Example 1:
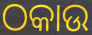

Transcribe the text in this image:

ଠକାଉ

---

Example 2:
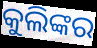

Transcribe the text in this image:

କୁଲିଙ୍କର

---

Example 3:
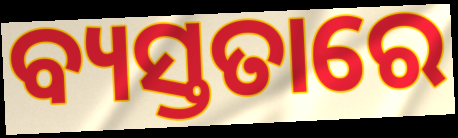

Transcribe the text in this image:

ବ୍ୟସ୍ତତାରେ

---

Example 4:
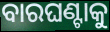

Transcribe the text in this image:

ବାରଘଣ୍ଟାକୁ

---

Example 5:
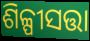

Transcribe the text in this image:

ଶିଳ୍ପୀସତ୍ତା